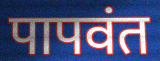
पापवंत